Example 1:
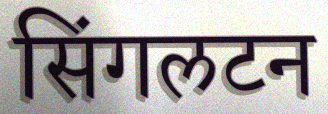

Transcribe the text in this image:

सिंगलटन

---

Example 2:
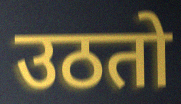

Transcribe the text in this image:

उठतो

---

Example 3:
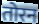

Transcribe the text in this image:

तोरन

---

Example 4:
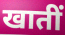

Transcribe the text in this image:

खातीं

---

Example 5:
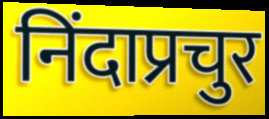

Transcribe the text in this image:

निंदाप्रचुर